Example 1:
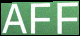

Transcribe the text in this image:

AFF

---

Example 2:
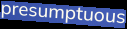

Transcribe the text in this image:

presumptuous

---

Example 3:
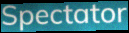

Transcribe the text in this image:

Spectator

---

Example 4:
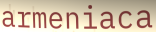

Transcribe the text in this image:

armeniaca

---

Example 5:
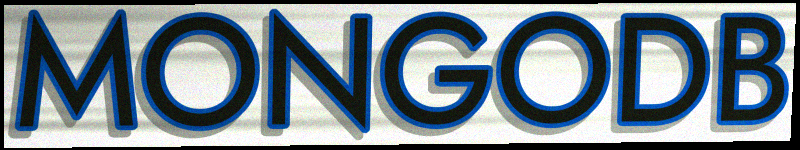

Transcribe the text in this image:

MONGODB